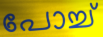
പോച്ച്